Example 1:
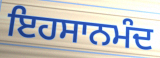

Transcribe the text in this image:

ਇਹਸਾਨਮੰਦ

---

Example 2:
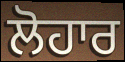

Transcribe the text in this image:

ਲੋਹਾਰ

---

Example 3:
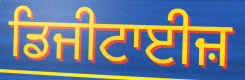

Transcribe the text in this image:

ਡਿਜੀਟਾਈਜ਼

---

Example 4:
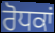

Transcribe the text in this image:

ਰੋਧਕਾਂ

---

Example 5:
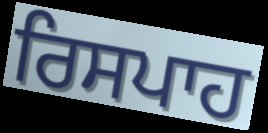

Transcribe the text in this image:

ਰਿਸਪਾਹ